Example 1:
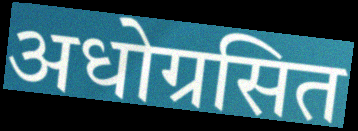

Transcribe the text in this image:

अधोग्रसित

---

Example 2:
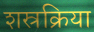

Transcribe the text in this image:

शस्रक्रिया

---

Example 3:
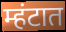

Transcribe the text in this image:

म्हंटात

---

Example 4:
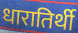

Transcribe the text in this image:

धारातिर्थी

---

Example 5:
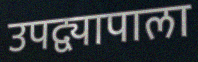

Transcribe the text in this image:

उपद्व्यापाला